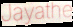
Jayathe